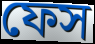
ফেস